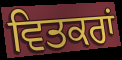
ਵਿਤਕਰਾਂ